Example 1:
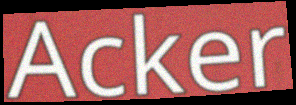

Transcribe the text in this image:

Acker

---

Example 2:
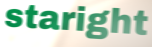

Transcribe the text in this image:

staright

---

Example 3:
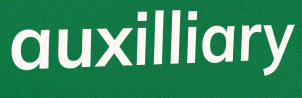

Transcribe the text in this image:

auxilliary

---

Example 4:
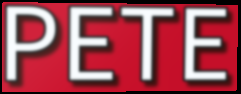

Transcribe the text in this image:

PETE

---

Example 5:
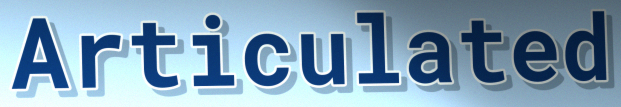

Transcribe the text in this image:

Articulated